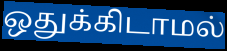
ஒதுக்கிடாமல்